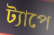
ট্যাপে